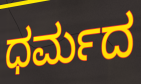
ಧರ್ಮದ